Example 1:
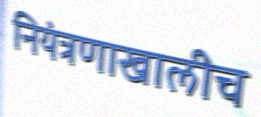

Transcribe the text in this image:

नियंत्रणाखालीच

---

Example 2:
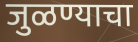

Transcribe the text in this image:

जुळण्याचा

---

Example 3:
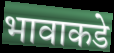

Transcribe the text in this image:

भावाकडे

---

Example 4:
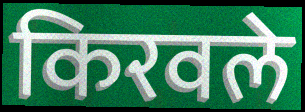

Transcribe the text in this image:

किरवले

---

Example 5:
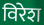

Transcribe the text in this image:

विरेश